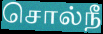
சொல்நீ